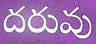
దరువు